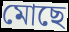
মোছে